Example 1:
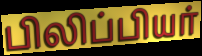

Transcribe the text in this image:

பிலிப்பியர்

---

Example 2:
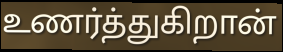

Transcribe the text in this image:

உணர்த்துகிறான்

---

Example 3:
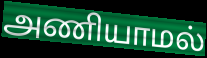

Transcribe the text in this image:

அணியாமல்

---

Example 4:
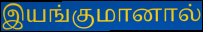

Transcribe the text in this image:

இயங்குமானால்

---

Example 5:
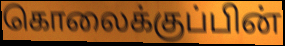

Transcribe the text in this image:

கொலைக்குப்பின்